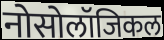
नोसोलॉजिकल